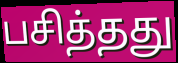
பசித்தது